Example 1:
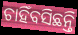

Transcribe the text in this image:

ଚାହିଁବସିଛନ୍ତି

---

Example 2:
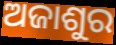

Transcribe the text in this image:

ଅଜାଶୁର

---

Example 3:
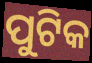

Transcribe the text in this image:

ପୁଟିକ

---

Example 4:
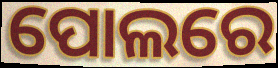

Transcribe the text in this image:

ପୋଲରେ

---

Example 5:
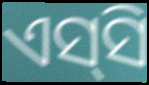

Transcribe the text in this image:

ଏସ୍‌ସି